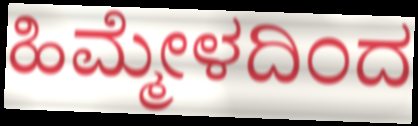
ಹಿಮ್ಮೇಳದಿಂದ